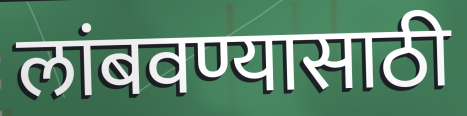
लांबवण्यासाठी